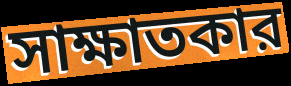
সাক্ষাতকার